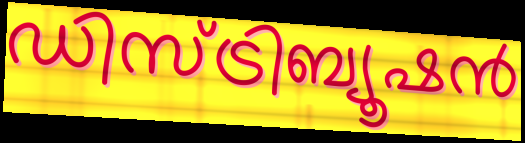
ഡിസ്ട്രിബ്യൂഷൻ